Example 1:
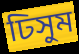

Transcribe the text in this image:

ঢিসুম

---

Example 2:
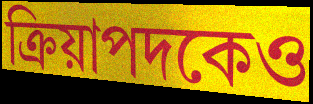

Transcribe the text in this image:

ক্রিয়াপদকেও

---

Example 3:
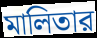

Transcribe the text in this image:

মালিতার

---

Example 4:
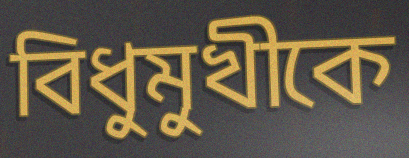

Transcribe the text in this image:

বিধুমুখীকে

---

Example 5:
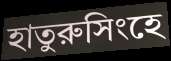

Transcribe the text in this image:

হাতুরুসিংহে